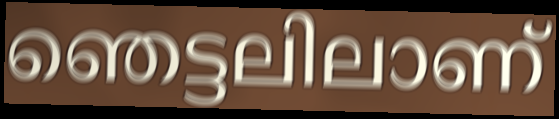
ഞെട്ടലിലാണ്